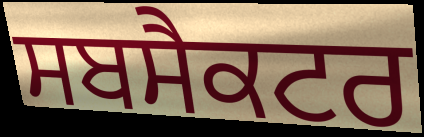
ਸਬਸੈਕਟਰ